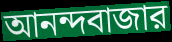
আনন্দবাজার